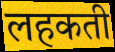
लहकती